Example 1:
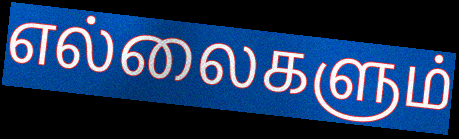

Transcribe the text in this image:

எல்லைகளும்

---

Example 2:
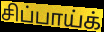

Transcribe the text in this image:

சிப்பாய்க்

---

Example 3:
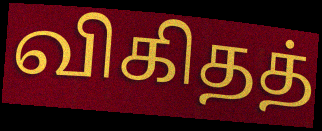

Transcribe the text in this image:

விகிதத்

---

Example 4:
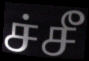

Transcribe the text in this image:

ச்சீ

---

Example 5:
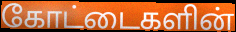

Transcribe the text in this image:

கோட்டைகளின்